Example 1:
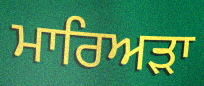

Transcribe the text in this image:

ਮਾਰਿਅੜਾ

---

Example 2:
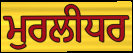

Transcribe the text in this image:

ਮੁਰਲੀਧਰ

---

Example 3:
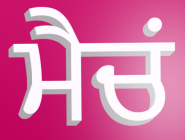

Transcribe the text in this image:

ਮੈਚਂ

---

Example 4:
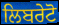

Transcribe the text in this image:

ਲਿਬਰੇਟੋ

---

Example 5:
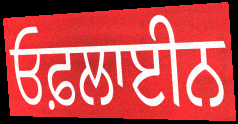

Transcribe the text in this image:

ਓਫ਼ਲਾਈਨ